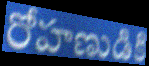
రోహణుడికి